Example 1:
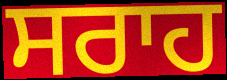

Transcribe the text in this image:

ਸਰਾਹ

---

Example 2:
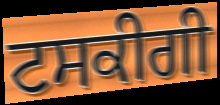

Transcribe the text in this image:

ਟਸਕੀਗੀ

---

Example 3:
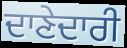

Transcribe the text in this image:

ਦਾਣੇਦਾਰੀ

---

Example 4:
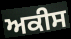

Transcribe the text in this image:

ਅਕੀਸ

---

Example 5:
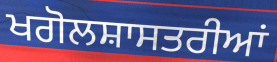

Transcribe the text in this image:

ਖਗੋਲਸ਼ਾਸਤਰੀਆਂ